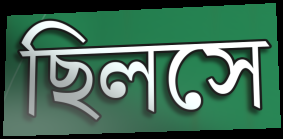
ছিলসে